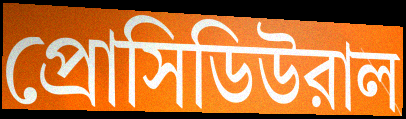
প্রোসিডিউরাল